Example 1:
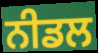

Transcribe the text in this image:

ਨੀਡਲ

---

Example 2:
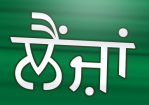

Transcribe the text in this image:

ਲੈਂਜ਼ਾਂ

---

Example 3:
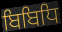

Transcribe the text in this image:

ਬਿਬਿਧਿ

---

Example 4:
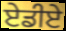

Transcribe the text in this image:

ਏਡੀਏ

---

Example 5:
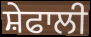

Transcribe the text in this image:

ਸ਼ੇਫਾਲੀ